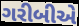
ગરીબીએ